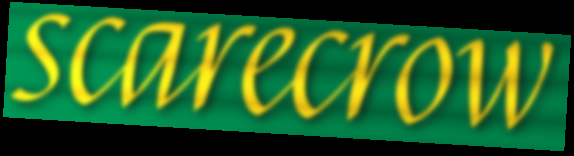
scarecrow